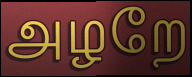
அழறே